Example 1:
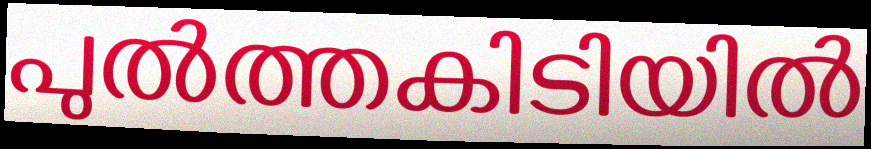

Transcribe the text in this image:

പുൽത്തകിടിയിൽ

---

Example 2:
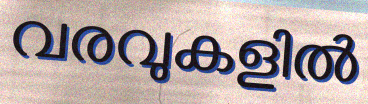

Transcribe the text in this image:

വരവുകളിൽ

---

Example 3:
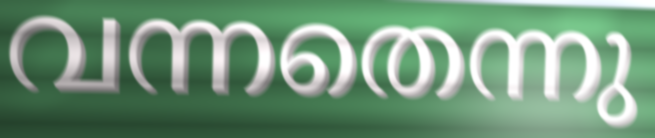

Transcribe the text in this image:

വന്നതെന്നു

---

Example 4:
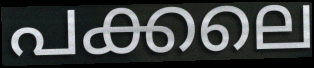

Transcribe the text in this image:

പക്കലെ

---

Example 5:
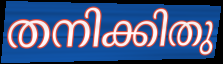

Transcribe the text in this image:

തനിക്കിതു